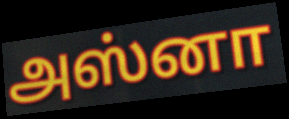
அஸ்னா